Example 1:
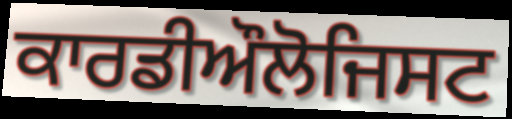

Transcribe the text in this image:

ਕਾਰਡੀਔਲੋਜਿਸਟ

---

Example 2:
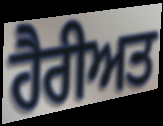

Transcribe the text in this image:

ਹੈਰੀਅਤ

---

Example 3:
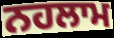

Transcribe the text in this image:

ਨਹਲਾਮ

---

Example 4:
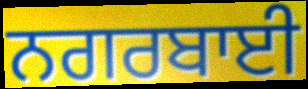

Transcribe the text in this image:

ਨਗਰਬਾਈ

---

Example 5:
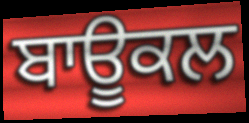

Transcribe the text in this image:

ਬਾਊਕਲ